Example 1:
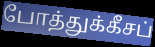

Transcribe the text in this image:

போத்துக்கீசப்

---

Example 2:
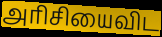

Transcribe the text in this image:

அரிசியைவிட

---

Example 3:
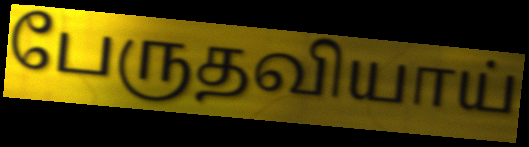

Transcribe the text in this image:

பேருதவியாய்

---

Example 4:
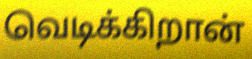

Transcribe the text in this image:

வெடிக்கிறான்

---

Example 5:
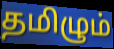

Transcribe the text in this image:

தமிழும்